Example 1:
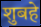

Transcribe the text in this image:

शुबहे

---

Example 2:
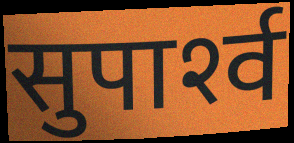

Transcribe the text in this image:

सुपार्श्व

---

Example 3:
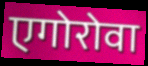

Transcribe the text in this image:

एगोरोवा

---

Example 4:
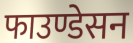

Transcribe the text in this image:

फाउण्डेसन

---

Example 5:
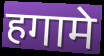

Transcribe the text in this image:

हगामे